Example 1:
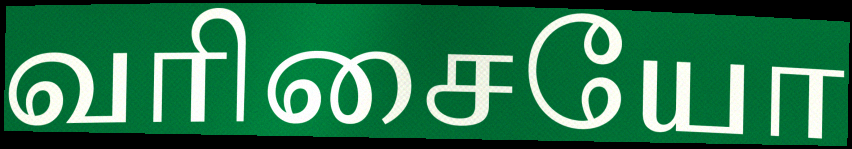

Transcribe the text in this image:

வரிசையோ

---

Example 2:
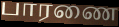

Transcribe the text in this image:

பாரணை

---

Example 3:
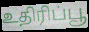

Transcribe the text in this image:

உதிரிப்பூ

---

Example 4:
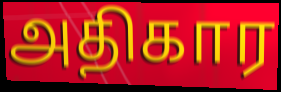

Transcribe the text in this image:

அதிகார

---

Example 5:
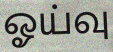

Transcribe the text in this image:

ஓய்வு